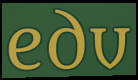
edu